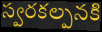
స్వరకల్పనకి